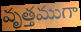
వృత్తముగా